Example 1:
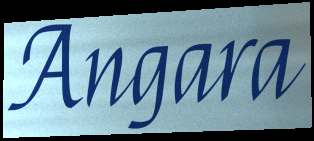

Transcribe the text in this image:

Angara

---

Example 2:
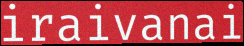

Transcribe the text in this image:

iraivanai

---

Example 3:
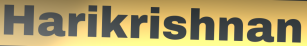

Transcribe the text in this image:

Harikrishnan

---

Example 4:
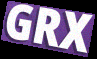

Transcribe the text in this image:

GRX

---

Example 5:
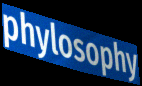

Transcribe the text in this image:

phylosophy